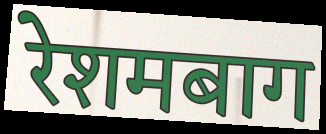
रेशमबाग